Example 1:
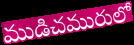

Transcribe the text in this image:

ముడిచమురులో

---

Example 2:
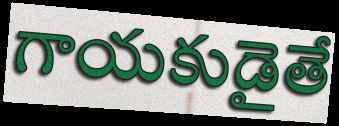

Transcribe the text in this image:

గాయకుడైతే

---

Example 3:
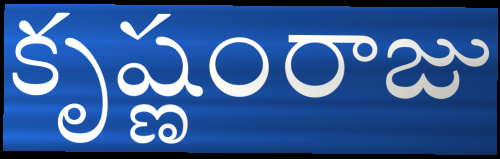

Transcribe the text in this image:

కృష్ణంరాజు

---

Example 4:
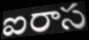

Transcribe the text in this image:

ఐరాస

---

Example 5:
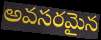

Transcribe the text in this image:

అవసరమైన